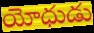
యోధుడు